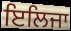
ਇਲਿਜਾ